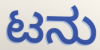
ಟನು